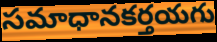
సమాధానకర్తయగు